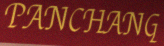
PANCHANG